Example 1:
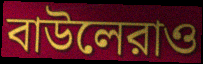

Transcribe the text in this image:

বাউলেরাও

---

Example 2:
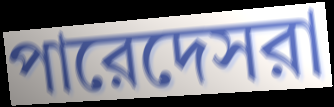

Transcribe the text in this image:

পারেদেসরা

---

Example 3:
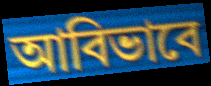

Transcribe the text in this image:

আবিভাবে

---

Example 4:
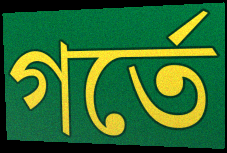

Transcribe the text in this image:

গর্তে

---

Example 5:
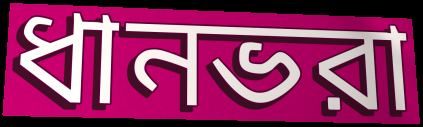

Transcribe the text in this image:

ধানভরা